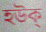
হউক্